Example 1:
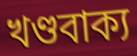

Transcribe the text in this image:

খণ্ডবাক্য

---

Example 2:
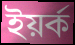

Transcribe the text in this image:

ইয়ৰ্ক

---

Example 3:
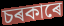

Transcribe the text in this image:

চৰকাৰে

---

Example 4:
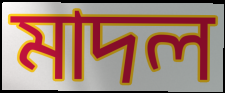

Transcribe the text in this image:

মাদল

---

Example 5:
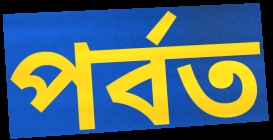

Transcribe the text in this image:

পৰ্বত